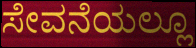
ಸೇವನೆಯಲ್ಲೂ